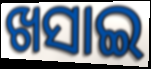
ଖସାଇ